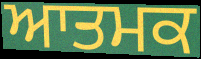
ਆਤਮਕ